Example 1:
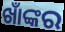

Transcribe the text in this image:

ଖାଁଙ୍କର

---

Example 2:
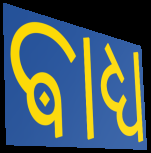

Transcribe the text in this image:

ଵାଧ୍ୟ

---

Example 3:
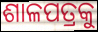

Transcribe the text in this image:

ଶାଳପତ୍ରକୁ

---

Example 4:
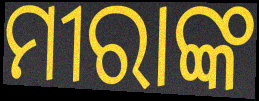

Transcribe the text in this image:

ମୀରାଙ୍କ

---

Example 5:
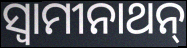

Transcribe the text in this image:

ସ୍ୱାମୀନାଥନ୍